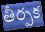
తీర్పక